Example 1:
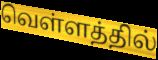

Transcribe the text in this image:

வெள்ளத்தில்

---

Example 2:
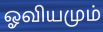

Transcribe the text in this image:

ஓவியமும்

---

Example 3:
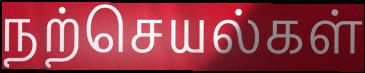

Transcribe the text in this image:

நற்செயல்கள்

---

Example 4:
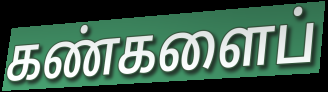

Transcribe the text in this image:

கண்களைப்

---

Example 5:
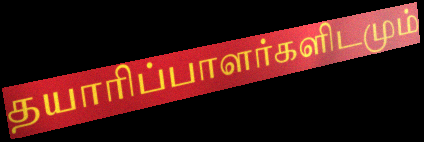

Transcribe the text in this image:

தயாரிப்பாளர்களிடமும்